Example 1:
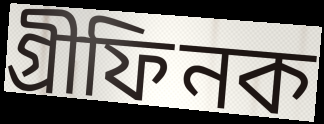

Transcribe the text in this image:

গ্ৰীফিনক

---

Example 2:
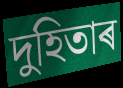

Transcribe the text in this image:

দুহিতাৰ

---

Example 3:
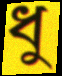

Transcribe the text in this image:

ধু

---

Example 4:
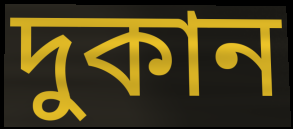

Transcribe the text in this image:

দুকান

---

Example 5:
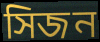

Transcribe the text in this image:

সিজন